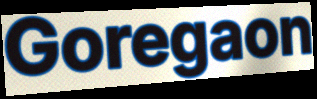
Goregaon